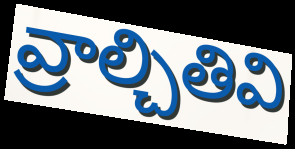
వ్రాల్చితివి